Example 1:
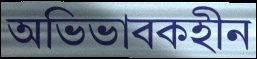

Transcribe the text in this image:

অভিভাবকহীন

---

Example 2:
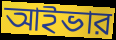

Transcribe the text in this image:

আইভার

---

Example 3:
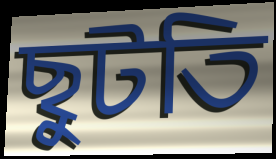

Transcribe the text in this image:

ছুটতি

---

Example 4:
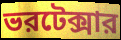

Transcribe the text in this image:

ভরটেক্সার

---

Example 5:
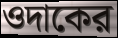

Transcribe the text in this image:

ওদাকের